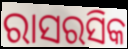
ରାସରସିକ